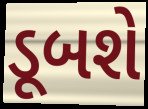
ડૂબશે